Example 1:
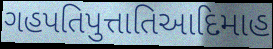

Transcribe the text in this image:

ગહપતિપુત્તાતિઆદિમાહ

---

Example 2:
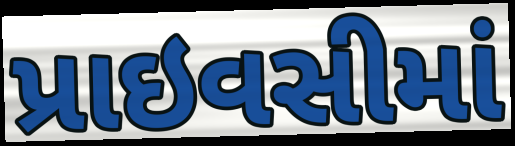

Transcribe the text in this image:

પ્રાઇવસીમાં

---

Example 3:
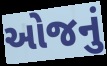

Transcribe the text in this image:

ઓજનું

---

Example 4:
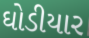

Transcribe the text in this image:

ઘોડીયાર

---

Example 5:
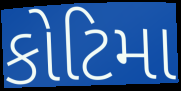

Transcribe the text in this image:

કોટિમા